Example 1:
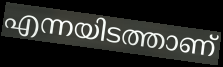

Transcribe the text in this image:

എന്നയിടത്താണ്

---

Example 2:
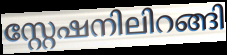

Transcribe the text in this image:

സ്റ്റേഷനിലിറങ്ങി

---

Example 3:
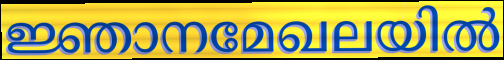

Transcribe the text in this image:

ജ്ഞാനമേഖലയിൽ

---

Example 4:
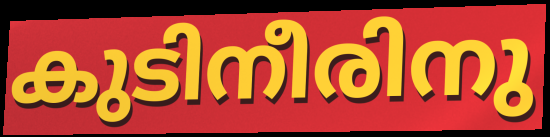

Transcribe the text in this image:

കുടിനീരിനു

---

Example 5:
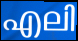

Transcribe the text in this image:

എലി